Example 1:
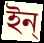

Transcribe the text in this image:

ইন্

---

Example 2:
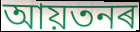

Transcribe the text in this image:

আয়তনৰ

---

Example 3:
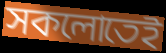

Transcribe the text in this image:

সকলোতেই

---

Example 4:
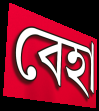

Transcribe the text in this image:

বেহা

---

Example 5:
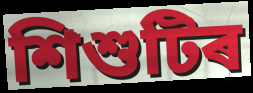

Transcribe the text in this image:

শিশুটিৰ